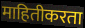
माहितीकरता